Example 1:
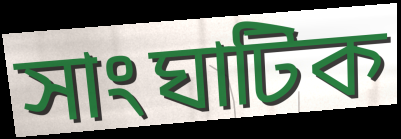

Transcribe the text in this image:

সাংঘাটিক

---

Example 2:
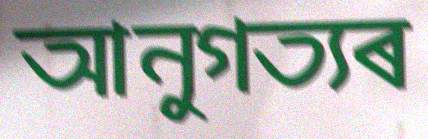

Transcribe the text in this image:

আনুগত্যৰ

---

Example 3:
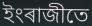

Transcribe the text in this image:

ইংৰাজীতে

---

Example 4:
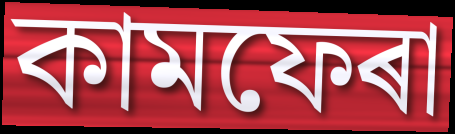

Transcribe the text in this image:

কামফেৰা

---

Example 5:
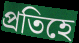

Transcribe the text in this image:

প্ৰতিহে